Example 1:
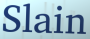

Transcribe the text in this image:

Slain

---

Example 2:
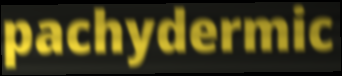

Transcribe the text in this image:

pachydermic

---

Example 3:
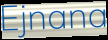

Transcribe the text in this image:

Ejnana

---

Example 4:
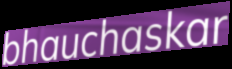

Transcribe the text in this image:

bhauchaskar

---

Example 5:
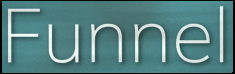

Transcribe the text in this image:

Funnel